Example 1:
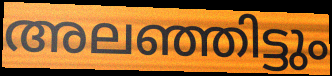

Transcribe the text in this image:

അലഞ്ഞിട്ടും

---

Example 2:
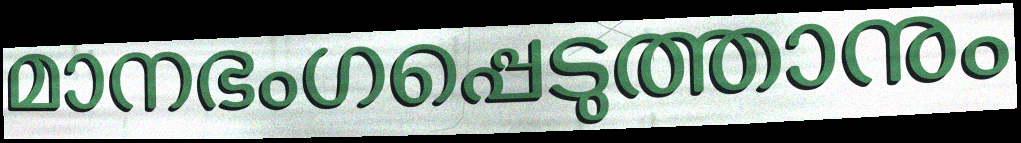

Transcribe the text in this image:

മാനഭംഗപ്പെടുത്താനും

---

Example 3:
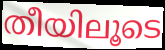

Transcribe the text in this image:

തീയിലൂടെ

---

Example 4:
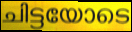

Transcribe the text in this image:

ചിട്ടയോടെ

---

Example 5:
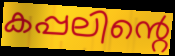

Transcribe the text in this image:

കപ്പലിന്റെ